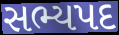
સભ્યપદ